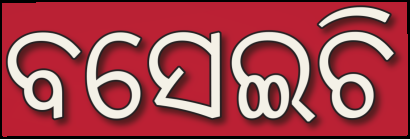
ବସେଇଚି